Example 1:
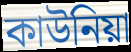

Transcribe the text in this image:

কাউনিয়া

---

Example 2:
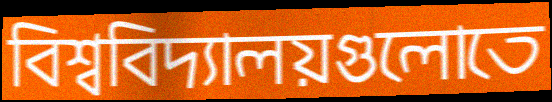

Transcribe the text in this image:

বিশ্ববিদ্যালয়গুলোতে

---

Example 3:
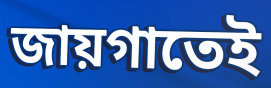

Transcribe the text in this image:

জায়গাতেই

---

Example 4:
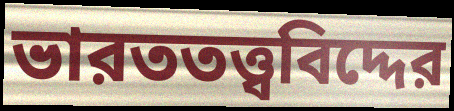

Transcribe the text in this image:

ভারততত্ত্ববিদ্দের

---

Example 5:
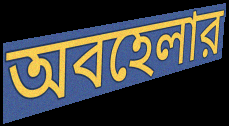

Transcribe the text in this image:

অবহেলার